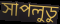
সাপলুডু